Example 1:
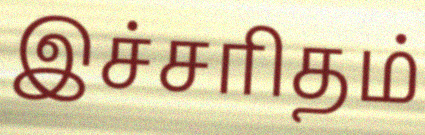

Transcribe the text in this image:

இச்சரிதம்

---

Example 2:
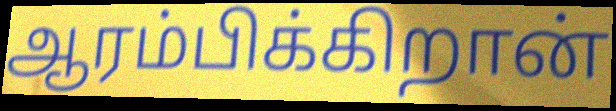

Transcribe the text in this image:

ஆரம்பிக்கிறான்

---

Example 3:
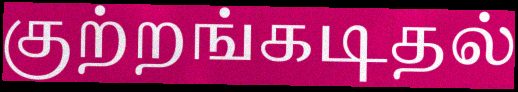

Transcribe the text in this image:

குற்றங்கடிதல்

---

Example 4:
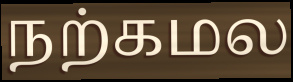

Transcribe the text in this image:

நற்கமல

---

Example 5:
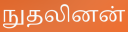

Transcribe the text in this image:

நுதலினன்